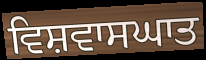
ਵਿਸ਼ਵਾਸਘਾਤ